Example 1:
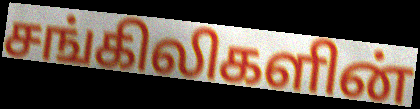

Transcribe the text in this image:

சங்கிலிகளின்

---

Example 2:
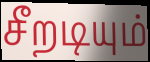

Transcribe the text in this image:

சீறடியும்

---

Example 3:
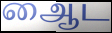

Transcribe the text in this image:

ஆைட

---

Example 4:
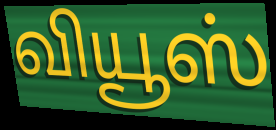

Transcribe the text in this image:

வியூஸ்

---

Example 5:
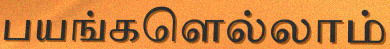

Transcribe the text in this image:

பயங்களெல்லாம்